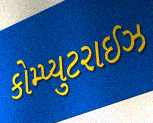
કોમ્પ્યુટરાઈઝ